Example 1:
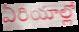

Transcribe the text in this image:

ఏరియాల్లో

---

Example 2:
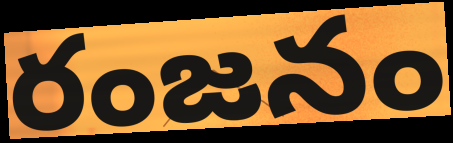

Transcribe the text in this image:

రంజనం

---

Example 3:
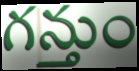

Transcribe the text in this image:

గన్తుం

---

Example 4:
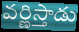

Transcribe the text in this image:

వర్ణిస్తాడు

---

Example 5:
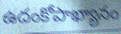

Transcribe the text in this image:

ఉదంకోపాఖ్యానం